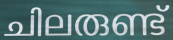
ചിലരുണ്ട്